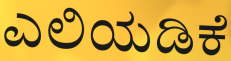
ಎಲಿಯಡಿಕೆ